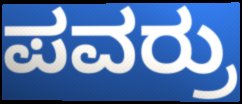
ಪವರ್ರು